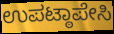
ಉಪಟ್ಠಾಪೇಸಿ